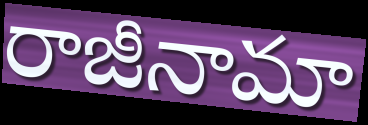
రాజీనామా